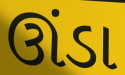
ઊંડા